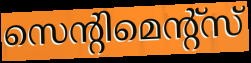
സെന്റിമെന്റ്സ്